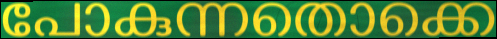
പോകുന്നതൊക്കെ